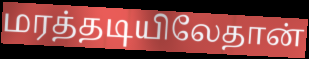
மரத்தடியிலேதான்